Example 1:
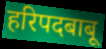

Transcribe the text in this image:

हरिपदबाबू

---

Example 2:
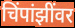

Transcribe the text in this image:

चिंपांझींवर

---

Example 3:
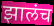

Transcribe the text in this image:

झालंच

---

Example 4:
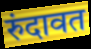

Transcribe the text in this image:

रुंदावत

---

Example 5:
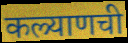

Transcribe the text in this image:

कल्याणची